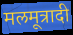
मलमूत्रादी